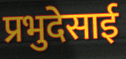
प्रभुदेसाई